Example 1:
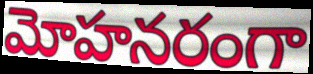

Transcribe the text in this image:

మోహనరంగా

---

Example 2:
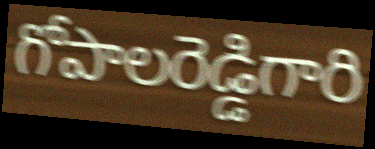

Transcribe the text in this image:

గోపాలరెడ్డిగారి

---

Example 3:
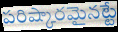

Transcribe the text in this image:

పరిష్కారమైనట్టే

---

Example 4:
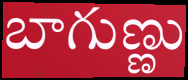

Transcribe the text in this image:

బాగుణ్ణు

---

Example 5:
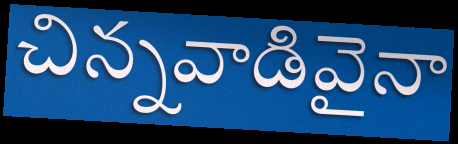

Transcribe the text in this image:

చిన్నవాడివైనా